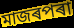
মাজৰপৰা